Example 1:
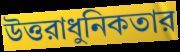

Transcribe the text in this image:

উত্তরাধুনিকতার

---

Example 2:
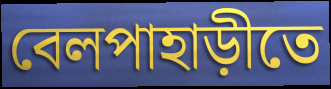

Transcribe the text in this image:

বেলপাহাড়ীতে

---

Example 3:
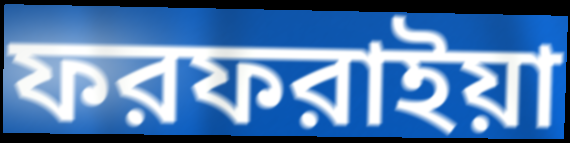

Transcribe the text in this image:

ফরফরাইয়া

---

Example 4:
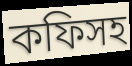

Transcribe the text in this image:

কফিসহ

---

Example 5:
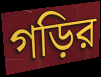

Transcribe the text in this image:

গড়ির